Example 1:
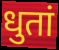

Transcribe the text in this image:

धुतां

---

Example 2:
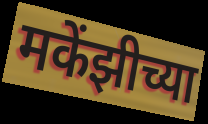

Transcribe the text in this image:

मकेंझीच्या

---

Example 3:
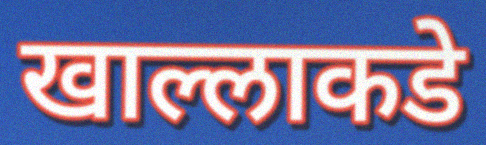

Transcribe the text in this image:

खाल्लाकडे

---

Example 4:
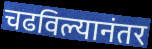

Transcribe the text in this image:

चढविल्यानंतर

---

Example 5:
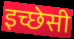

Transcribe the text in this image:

इच्छेसी